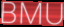
BMU